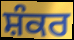
ਸ਼ੰਕਰ